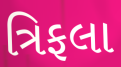
ત્રિફલા